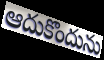
ఆదుకొందును